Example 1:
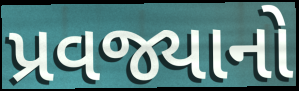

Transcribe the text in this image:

પ્રવજ્યાનો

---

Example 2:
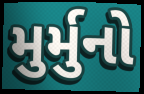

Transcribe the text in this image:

મુર્મુનો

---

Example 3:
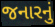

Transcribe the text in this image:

જનારનું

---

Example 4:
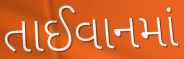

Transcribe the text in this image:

તાઈવાનમાં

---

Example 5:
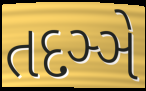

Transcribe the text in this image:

તદઞ્ઞે